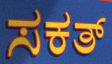
ಸಕತ್